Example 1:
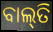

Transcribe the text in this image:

ବାଲ୍‌ତି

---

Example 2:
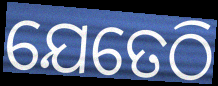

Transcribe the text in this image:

ଯେତେଠି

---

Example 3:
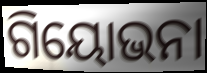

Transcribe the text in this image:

ଗିୟୋଭନା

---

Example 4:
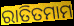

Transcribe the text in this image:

ରାତିତମାମ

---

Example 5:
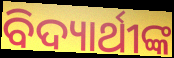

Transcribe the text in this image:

ବିଦ୍ୟାର୍ଥୀଙ୍କ